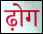
ढ़ोग